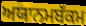
ਅਯਾਨਮਬੱਕਮ